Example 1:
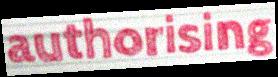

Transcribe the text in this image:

authorising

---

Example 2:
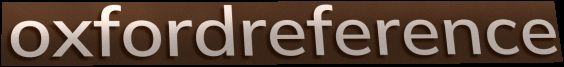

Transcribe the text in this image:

oxfordreference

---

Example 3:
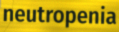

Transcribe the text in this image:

neutropenia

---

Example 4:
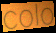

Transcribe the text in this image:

colo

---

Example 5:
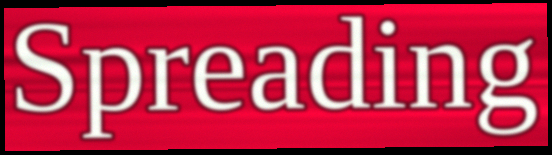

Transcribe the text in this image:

Spreading